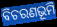
ବିଚରଣଭୂମି